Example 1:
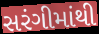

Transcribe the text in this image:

સરંગીમાંથી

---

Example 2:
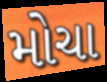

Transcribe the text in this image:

મોચા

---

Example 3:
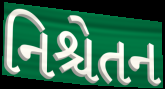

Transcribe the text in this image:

નિશ્ચેતન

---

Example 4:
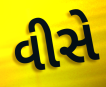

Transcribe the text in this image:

વીસે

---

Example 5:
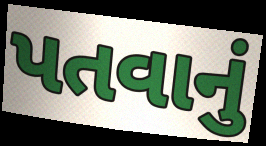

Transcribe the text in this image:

પતવાનું